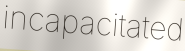
incapacitated